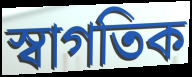
স্বাগতিক